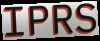
IPRS